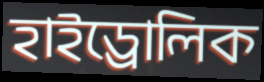
হাইড্রোলিক